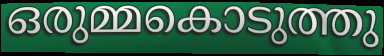
ഒരുമ്മകൊടുത്തു